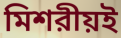
মিশরীয়ই